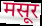
मसूर